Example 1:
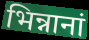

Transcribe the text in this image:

भिन्नानां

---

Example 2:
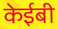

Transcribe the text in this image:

केईबी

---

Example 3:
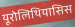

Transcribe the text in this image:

यूरोलिथियासिस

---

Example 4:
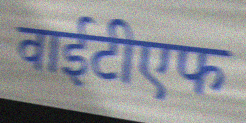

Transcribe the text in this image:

वाईटीएफ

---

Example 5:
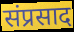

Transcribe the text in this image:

संप्रसाद